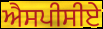
ਐਸਪੀਸੀਏ